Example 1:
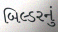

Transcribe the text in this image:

બિલ્ડરનું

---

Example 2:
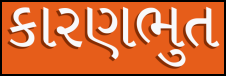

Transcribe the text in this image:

કારણભુત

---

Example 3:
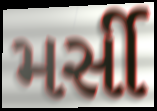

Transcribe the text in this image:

મર્સી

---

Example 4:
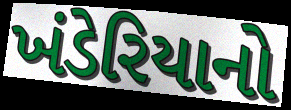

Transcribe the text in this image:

ખંડેરિયાનો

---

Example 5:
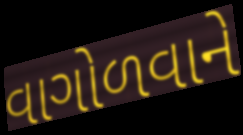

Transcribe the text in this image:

વાગોળવાને